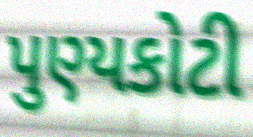
પુણ્યકોટી